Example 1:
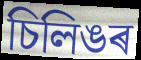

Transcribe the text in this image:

চিলিঙৰ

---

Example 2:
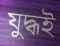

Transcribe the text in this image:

যুদ্ধই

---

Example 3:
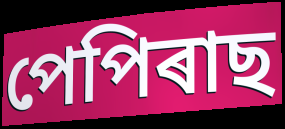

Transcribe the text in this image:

পেপিৰাছ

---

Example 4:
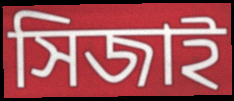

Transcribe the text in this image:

সিজাই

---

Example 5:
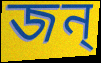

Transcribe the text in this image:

জন্